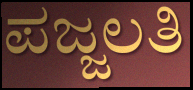
ಪಜ್ಜಲತಿ